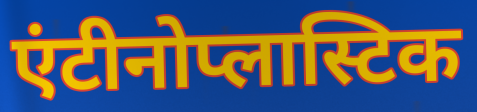
एंटीनोप्लास्टिक